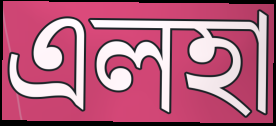
এলহা